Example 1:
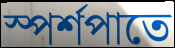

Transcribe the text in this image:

স্পর্শপাতে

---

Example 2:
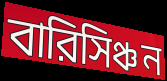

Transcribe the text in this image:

বারিসিঞ্চন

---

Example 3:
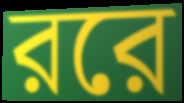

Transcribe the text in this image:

ররে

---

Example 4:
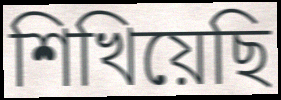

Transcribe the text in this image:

শিখিয়েছি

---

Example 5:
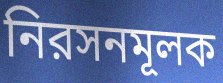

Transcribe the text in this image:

নিরসনমূলক